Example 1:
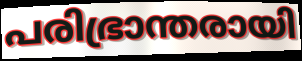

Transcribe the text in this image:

പരിഭ്രാന്തരായി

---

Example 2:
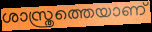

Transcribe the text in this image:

ശാസ്ത്രത്തെയാണ്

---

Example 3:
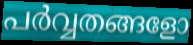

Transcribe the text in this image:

പർവ്വതങ്ങളോ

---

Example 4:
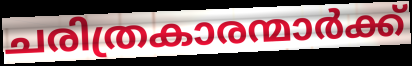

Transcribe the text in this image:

ചരിത്രകാരന്മാർക്ക്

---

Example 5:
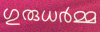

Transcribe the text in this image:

ഗുരുധർമ്മ